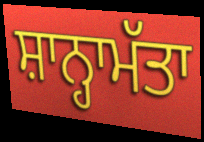
ਸ਼ਾਨ੍ਹਾਮੱਤਾ